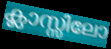
ക്ലാസ്സിലോ